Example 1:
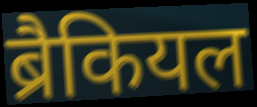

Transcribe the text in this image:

ब्रैकियल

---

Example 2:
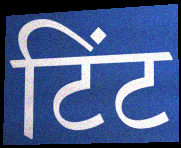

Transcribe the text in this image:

टिंट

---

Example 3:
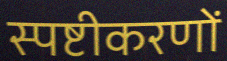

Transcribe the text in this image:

स्पष्टीकरणों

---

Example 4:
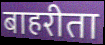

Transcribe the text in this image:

बाहरीता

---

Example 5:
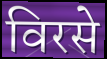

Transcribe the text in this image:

विरसे